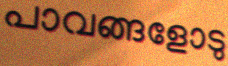
പാവങ്ങളോടു